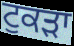
ਟੁਕਡ਼ਾ